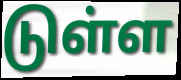
டுள்ள